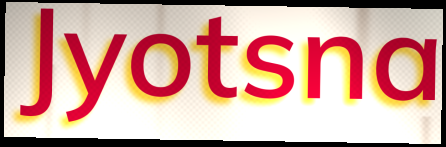
Jyotsna